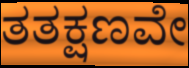
ತತಕ್ಷಣವೇ